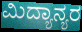
ಮಿದ್ಯಾನ್ಯರ